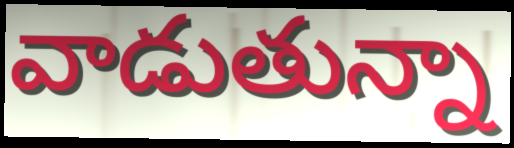
వాడుతున్నా